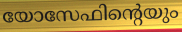
യോസേഫിന്റെയും